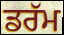
ਡਰੱਮ